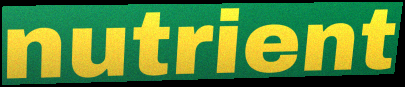
nutrient